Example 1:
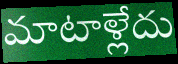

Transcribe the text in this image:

మాటాళ్లేదు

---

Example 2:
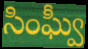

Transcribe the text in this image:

సింఘ్వీ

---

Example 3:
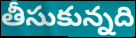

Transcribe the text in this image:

తీసుకున్నది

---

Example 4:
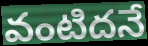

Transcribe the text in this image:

వంటిదనే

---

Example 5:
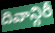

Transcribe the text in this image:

దివాన్గిరీ